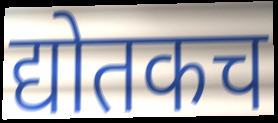
द्योतकच